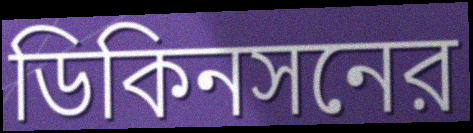
ডিকিনসনের